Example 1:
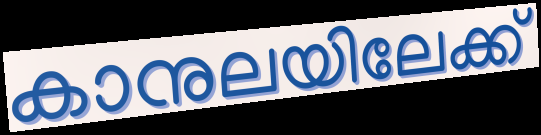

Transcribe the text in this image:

കാനുലയിലേക്ക്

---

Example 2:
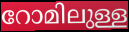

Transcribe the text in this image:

റോമിലുള്ള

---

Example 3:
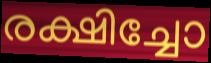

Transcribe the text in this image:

രക്ഷിച്ചോ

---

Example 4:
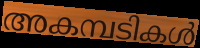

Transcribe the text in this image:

അകമ്പടികൾ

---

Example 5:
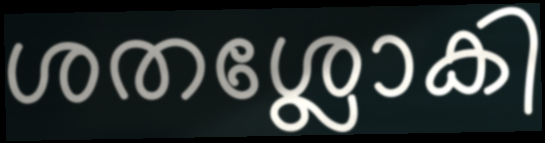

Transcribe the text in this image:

ശതശ്ലോകി